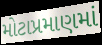
મોટાપ્રમાણમાં